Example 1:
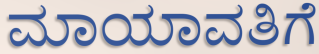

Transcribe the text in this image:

ಮಾಯಾವತಿಗೆ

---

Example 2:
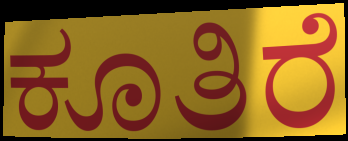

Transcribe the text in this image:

ಕೂತಿರೆ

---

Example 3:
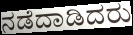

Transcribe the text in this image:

ನಡೆದಾಡಿದರು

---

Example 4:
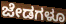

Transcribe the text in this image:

ಜೇಡಗಳೂ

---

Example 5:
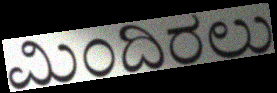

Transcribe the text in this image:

ಮಿಂದಿರಲು